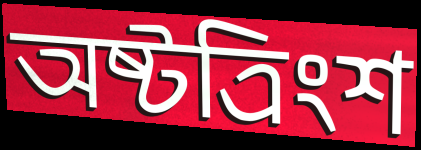
অষ্টত্রিংশ